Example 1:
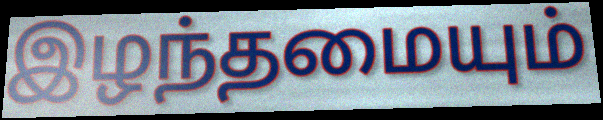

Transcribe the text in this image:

இழந்தமையும்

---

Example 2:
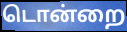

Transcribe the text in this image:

டொன்றை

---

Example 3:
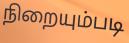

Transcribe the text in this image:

நிறையும்படி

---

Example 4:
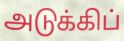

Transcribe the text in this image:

அடுக்கிப்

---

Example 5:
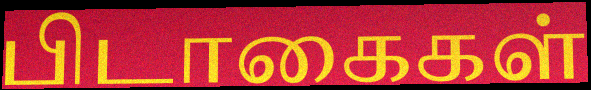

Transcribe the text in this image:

பிடாகைகள்